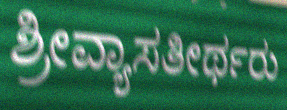
ಶ್ರೀವ್ಯಾಸತೀರ್ಥರು